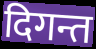
दिगन्त